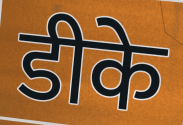
डीके